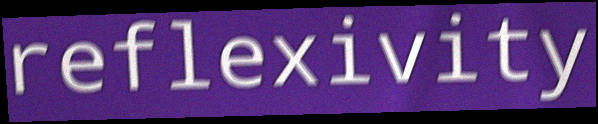
reflexivity